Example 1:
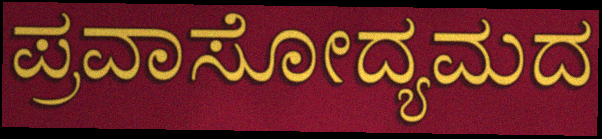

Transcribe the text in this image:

ಪ್ರವಾಸೋದ್ಯಮದ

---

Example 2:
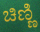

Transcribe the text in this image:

ಚಿಣ್ಣಿ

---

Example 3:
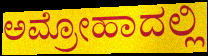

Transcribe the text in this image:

ಅಮ್ರೋಹಾದಲ್ಲಿ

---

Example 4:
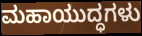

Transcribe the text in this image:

ಮಹಾಯುದ್ಧಗಳು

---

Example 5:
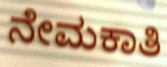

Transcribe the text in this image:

ನೇಮಕಾತಿ